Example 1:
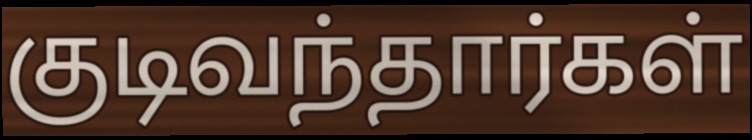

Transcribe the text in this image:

குடிவந்தார்கள்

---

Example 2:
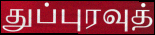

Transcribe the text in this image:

துப்புரவுத்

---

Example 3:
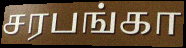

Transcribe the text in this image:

சரபங்கா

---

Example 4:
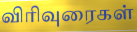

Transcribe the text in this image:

விரிவுரைகள்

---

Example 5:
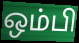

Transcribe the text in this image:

ஒம்பி